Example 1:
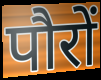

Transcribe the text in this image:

पौरों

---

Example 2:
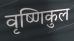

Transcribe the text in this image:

वृष्णिकुल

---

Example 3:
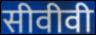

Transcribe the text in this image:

सीवीवी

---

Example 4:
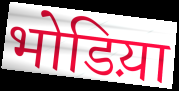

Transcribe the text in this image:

भोडिय़ा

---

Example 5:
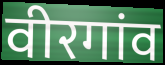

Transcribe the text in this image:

वीरगांव